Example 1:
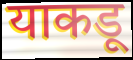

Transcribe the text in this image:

याकडू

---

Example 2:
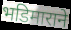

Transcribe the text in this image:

भडिमाराने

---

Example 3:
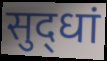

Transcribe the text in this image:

सुद्धां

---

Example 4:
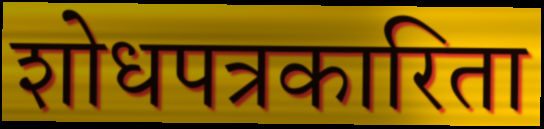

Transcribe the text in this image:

शोधपत्रकारिता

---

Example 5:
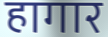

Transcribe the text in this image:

हागार